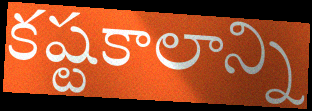
కష్టకాలాన్ని